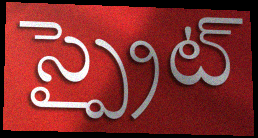
స్ప్రైట్